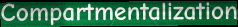
Compartmentalization